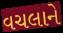
વચલાને